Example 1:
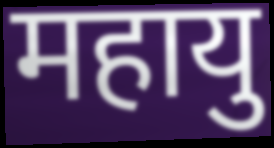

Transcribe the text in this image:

महायु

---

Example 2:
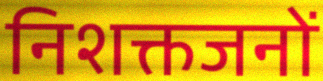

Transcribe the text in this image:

निशक्तजनों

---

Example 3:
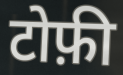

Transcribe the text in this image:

टोफ़ी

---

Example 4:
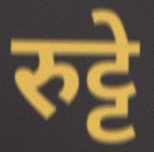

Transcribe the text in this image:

रुट्टे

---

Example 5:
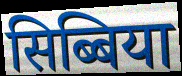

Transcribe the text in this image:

सिब्बिया